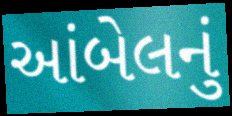
આંબેલનું